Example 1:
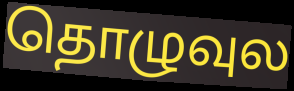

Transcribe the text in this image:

தொழுவுல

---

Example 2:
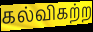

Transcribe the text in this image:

கல்விகற்ற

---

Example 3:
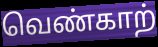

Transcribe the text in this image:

வெண்காற்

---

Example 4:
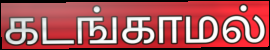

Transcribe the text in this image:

கடங்காமல்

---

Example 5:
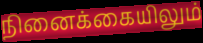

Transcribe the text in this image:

நினைக்கையிலும்